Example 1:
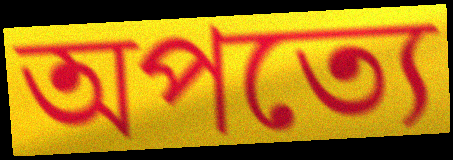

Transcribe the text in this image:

অপত্যে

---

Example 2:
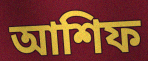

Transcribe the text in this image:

আশিফ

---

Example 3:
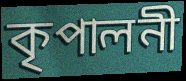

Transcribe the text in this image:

কৃপালনী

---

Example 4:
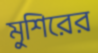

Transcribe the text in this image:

মুশিরের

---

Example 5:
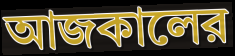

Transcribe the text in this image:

আজকালের